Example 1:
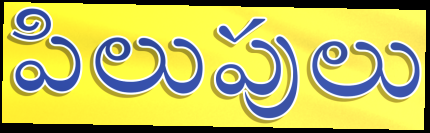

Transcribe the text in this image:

పిలుపులు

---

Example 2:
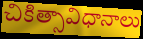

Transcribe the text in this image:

చికిత్సావిధానాలు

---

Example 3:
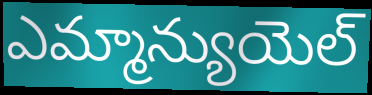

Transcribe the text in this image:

ఎమ్మాన్యుయెల్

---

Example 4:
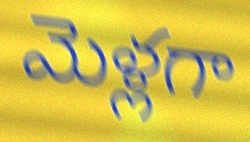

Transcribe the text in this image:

మెళ్లగా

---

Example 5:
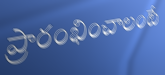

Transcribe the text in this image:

ప్రారంభించాలంటే